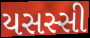
યસસ્સી